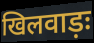
खिलवाड़ः